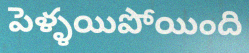
పెళ్ళయిపోయింది